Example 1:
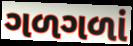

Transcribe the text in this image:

ગળગળાં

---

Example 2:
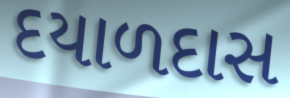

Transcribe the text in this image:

દયાળદાસ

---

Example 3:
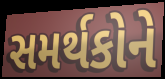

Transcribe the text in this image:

સમર્થકોને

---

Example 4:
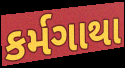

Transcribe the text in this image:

કર્મગાથા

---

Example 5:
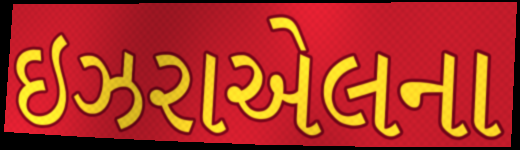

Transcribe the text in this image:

ઇઝરાએલના